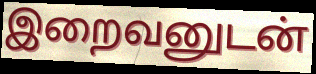
இறைவனுடன்